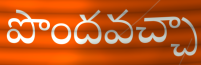
పొందవచ్చా